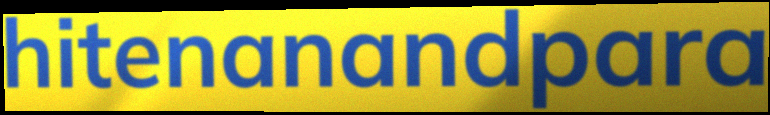
hitenanandpara